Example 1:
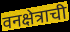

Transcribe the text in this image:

वनक्षेत्राची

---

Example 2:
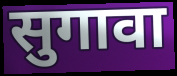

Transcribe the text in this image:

सुगावा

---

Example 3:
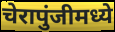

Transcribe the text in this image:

चेरापुंजीमध्ये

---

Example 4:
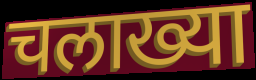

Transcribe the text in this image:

चलाख्या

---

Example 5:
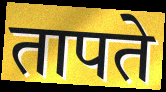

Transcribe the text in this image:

तापते